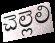
చెల్లెలి